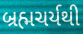
બ્રહ્મચર્યથી